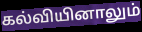
கல்வியினாலும்